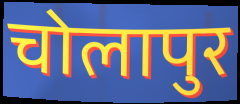
चोलापुर